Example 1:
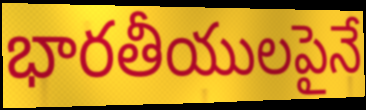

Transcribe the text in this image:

భారతీయులపైనే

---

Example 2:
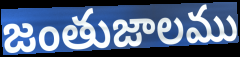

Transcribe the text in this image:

జంతుజాలము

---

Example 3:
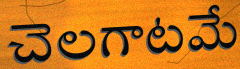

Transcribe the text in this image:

చెలగాటమే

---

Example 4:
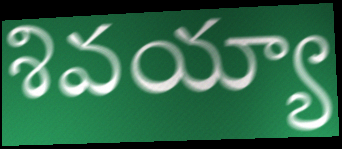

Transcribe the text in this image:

శివయ్యా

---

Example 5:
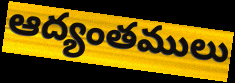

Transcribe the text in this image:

ఆద్యంతములు